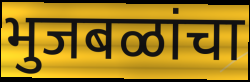
भुजबळांचा